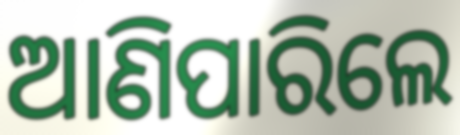
ଆଣିପାରିଲେ